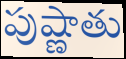
పుష్ణాతు